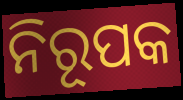
ନିରୂପକ